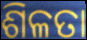
ଶିଳତା